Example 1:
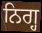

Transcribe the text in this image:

ਨਿਗ੍ਹ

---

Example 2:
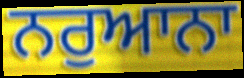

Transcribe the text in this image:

ਨਰੁਆਨਾ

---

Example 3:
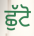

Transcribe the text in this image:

ਛੁੱਟੋ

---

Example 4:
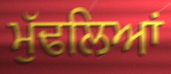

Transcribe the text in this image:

ਮੁੱਢਲਿਆਂ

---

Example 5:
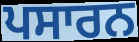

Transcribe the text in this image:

ਪਸਾਰਨ